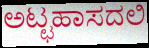
ಅಟ್ಟಹಾಸದಲಿ